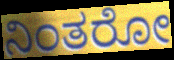
ನಿಂತರೋ